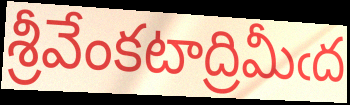
శ్రీవేంకటాద్రిమీఁద